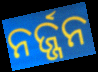
ନର୍ଜ୍ଜନ